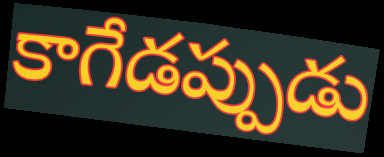
కాగేడప్పుడు